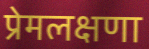
प्रेमलक्षणा